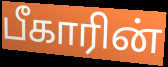
பீகாரின்